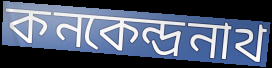
কনকেন্দ্রনাথ